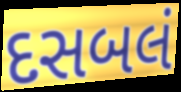
દસબલં